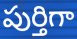
పుర్తిగా